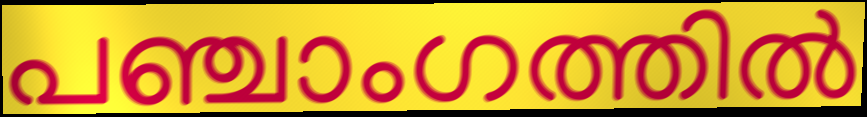
പഞ്ചാംഗത്തിൽ